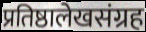
प्रतिष्ठालेखसंग्रह